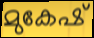
മുകേഷ്